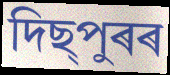
দিছ্পুৰৰ